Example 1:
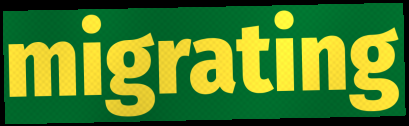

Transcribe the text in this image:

migrating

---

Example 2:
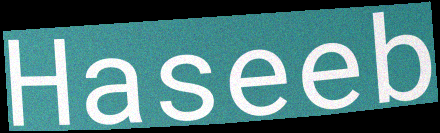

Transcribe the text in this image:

Haseeb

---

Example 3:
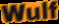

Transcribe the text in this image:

Wulf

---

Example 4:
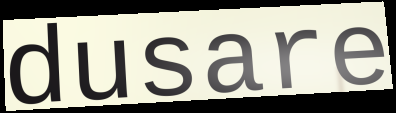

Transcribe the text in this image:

dusare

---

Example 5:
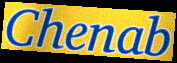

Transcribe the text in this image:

Chenab